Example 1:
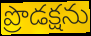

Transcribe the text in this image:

ప్రొడక్షను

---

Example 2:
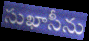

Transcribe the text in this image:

సుఖాసీను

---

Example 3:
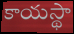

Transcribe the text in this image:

కాయస్థా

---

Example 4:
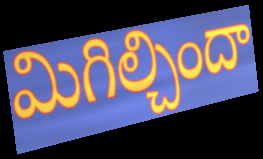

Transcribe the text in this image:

మిగిల్చిందా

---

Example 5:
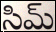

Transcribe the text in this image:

సిమ్